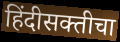
हिंदीसक्तीचा